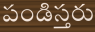
పండిస్తరు